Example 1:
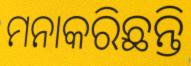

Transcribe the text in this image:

ମନାକରିଛନ୍ତି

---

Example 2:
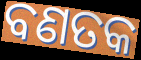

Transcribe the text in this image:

ବଣତକ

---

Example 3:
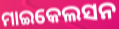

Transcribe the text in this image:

ମାଇକେଲସନ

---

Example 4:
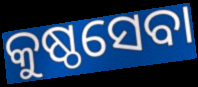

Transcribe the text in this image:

କୁଷ୍ଠସେବା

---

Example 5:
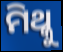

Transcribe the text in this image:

ମିଥ୍କୁ